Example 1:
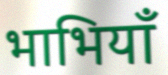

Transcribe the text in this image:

भाभियाँ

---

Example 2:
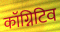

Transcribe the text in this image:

कॉग्निटिव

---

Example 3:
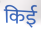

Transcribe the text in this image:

किई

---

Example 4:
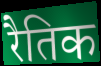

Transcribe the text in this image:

रैतिक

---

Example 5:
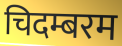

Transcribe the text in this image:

चिदम्बरम